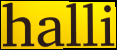
halli